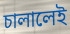
চালালেই